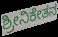
ಶ್ರೀನಿಕೇತನ